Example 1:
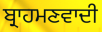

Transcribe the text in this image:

ਬ੍ਰਾਹਮਣਵਾਦੀ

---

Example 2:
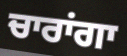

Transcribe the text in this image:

ਚਾਰਾਂਗਾ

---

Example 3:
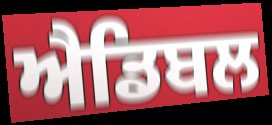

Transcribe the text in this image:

ਐਡਿਬਲ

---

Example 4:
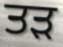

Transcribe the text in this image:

ਤੜ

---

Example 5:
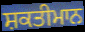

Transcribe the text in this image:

ਸ਼ਕਤੀਮਾਨ